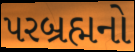
પરબ્રહ્મનો